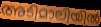
അടിമാലിയിൽ